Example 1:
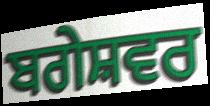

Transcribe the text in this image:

ਬਗੇਸ਼ਵਰ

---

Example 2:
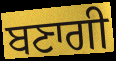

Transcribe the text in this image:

ਬਣਾਗੀ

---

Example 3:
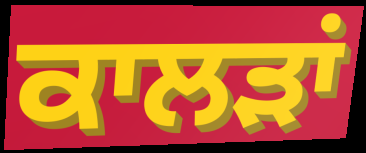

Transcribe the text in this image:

ਕਾਲੜਾਂ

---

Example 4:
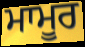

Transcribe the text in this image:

ਮਾਮੂਰ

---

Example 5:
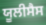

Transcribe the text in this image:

ਯੂਲੀਸੈਸ